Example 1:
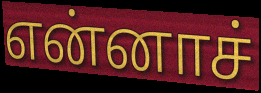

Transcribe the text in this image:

என்னாச்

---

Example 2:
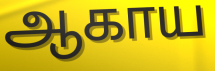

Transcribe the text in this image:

ஆகாய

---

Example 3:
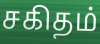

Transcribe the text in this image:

சகிதம்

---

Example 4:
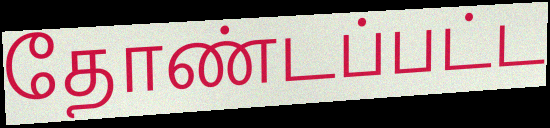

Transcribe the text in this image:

தோண்டப்பட்ட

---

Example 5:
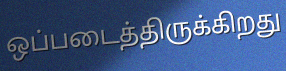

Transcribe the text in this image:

ஒப்படைத்திருக்கிறது